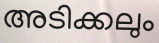
അടിക്കലും